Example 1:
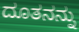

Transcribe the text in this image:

ದೂತನನ್ನು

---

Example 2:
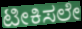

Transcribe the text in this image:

ಟೀಕಿಸಲೇ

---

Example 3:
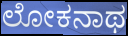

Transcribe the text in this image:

ಲೋಕನಾಥ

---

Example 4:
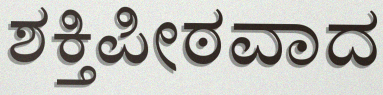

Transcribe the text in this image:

ಶಕ್ತಿಪೀಠವಾದ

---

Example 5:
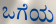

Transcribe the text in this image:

ಒಗೆಯ